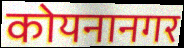
कोयनानगर